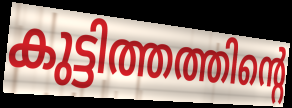
കുട്ടിത്തത്തിന്റെ